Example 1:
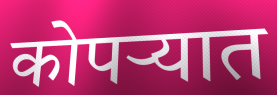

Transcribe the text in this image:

कोपऱ्यात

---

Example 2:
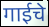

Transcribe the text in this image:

गाईचे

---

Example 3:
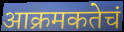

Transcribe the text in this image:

आक्रमकतेचं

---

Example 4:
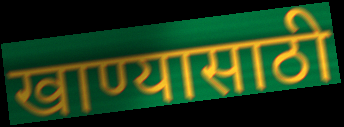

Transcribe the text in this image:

खाण्यासाठी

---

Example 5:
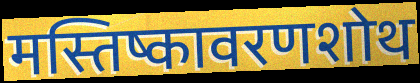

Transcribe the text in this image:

मस्तिष्कावरणशोथ